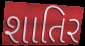
શાતિર